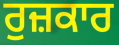
ਰੁਜ਼ਕਾਰ